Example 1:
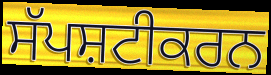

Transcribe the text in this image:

ਸੱਪਸ਼ਟੀਕਰਨ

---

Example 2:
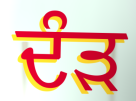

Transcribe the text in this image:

ਦੰੜ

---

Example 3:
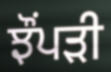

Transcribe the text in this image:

ਝੌਂਪੜੀ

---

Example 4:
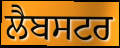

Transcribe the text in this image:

ਲੈਬਸਟਰ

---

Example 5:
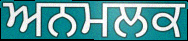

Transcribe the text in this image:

ਅਨਮਲਕ